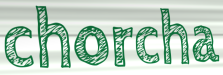
chorcha